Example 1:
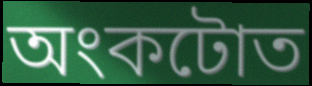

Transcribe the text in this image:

অংকটোত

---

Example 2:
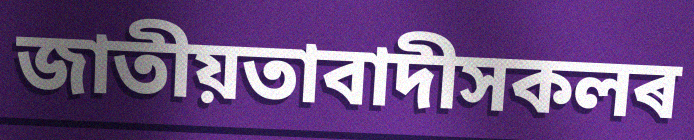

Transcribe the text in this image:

জাতীয়তাবাদীসকলৰ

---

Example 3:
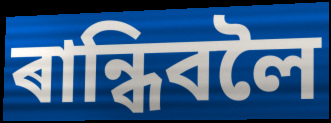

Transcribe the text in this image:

ৰান্ধিবলৈ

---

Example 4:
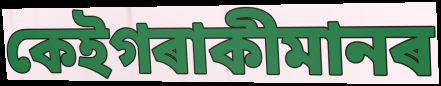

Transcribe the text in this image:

কেইগৰাকীমানৰ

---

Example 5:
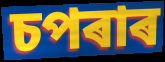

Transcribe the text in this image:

চপৰাৰ